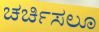
ಚರ್ಚಿಸಲೂ